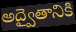
అద్వైతానికి